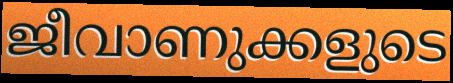
ജീവാണുക്കളുടെ